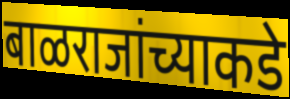
बाळराजांच्याकडे